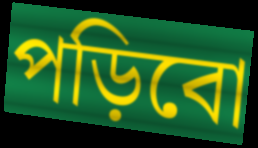
পড়িবো